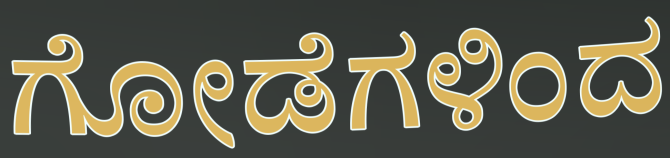
ಗೋಡೆಗಳಿಂದ